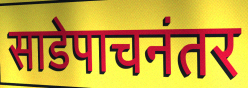
साडेपाचनंतर